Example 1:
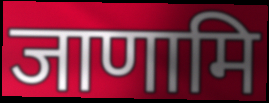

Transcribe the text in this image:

जाणामि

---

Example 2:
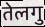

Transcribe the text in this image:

तेलगु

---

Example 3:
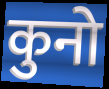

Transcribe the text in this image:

कुनो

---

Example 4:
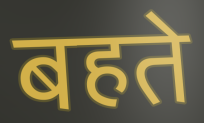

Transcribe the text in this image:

बहते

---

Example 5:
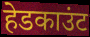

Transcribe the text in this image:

हेडकाउंट